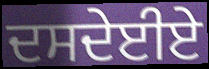
ਦਸਦੇਈਏ